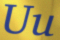
Uu